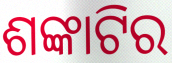
ଶଙ୍କାଟିର